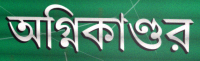
অগ্নিকাণ্ডর